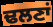
ਢਲਣਾਂ